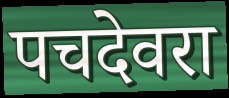
पचदेवरा